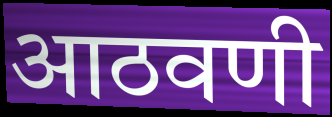
आठवणी